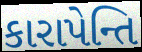
કારાપેન્તિ